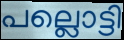
പല്ലൊട്ടി